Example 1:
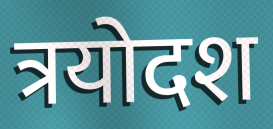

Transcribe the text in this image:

त्रयोदश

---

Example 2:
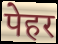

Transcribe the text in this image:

पेहर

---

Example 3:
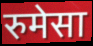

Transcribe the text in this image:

रुमेसा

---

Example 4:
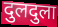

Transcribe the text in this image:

दुलदुला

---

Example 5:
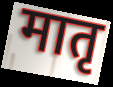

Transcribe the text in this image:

मातृ